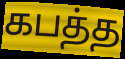
கபத்த